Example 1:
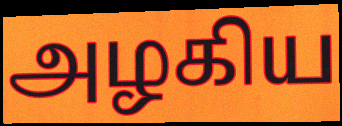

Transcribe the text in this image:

அழகிய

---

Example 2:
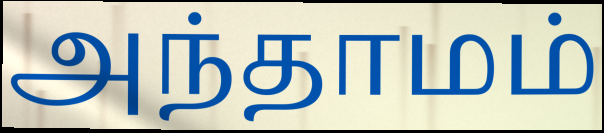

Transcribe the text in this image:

அந்தாமம்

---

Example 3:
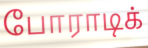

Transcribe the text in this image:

போராடிக்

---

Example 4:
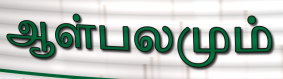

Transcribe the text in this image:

ஆள்பலமும்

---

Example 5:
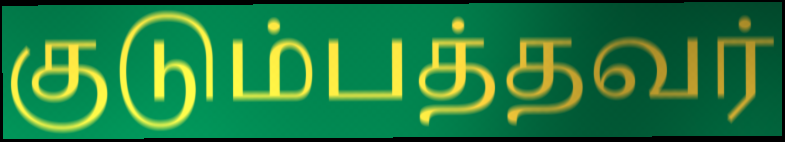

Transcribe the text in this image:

குடும்பத்தவர்